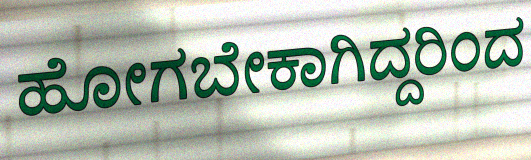
ಹೋಗಬೇಕಾಗಿದ್ದರಿಂದ